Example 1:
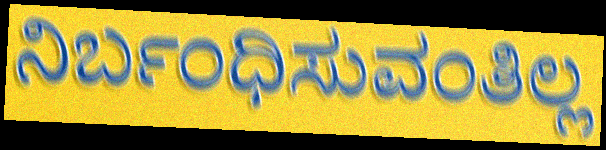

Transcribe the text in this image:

ನಿರ್ಬಂಧಿಸುವಂತಿಲ್ಲ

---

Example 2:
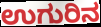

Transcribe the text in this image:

ಉಗುರಿನ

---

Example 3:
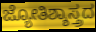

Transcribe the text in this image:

ಜ್ಯೋತಿಶ್ಶಾಸ್ತ್ರದ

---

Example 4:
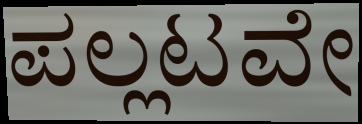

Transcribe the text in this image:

ಪಲ್ಲಟವೇ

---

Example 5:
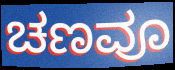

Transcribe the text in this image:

ಚಣವೂ